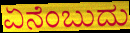
ಏನೆಂಬುದು